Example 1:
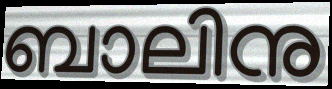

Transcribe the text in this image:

ബാലിനു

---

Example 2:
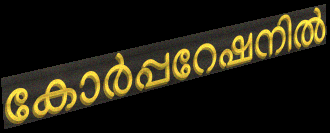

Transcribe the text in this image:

കോർപ്പറേഷനിൽ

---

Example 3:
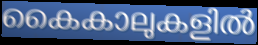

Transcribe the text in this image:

കൈകാലുകളിൽ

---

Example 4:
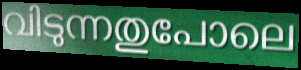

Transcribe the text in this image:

വിടുന്നതുപോലെ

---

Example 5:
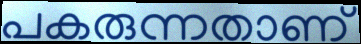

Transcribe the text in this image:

പകരുന്നതാണ്